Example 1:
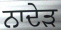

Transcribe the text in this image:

ਨਾਦੇੜ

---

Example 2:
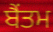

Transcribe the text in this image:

ਬੈਂਤਮ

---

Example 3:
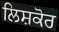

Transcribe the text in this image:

ਲਿਸ਼ਕੋਰ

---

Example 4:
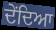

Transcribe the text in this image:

ਦੇਂਦਿਆ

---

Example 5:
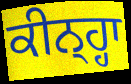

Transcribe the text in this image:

ਕੀਨ੍ਹ੍ਹਾ